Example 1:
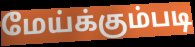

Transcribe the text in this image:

மேய்க்கும்படி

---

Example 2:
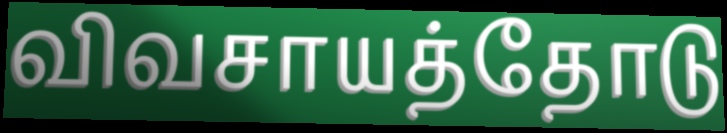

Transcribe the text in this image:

விவசாயத்தோடு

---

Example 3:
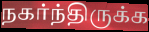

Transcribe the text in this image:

நகர்ந்திருக்க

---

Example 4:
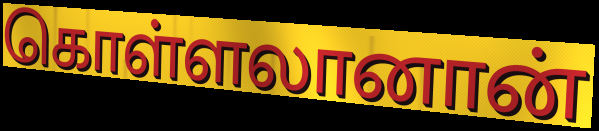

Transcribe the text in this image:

கொள்ளலானான்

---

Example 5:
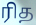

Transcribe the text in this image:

ரித